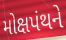
મોક્ષપંથને